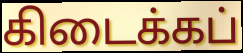
கிடைக்கப்